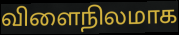
விளைநிலமாக